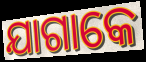
ଯାଗାକେ